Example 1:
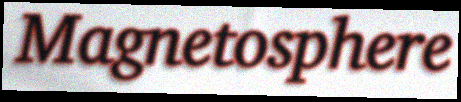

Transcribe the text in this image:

Magnetosphere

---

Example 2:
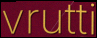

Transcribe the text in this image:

vrutti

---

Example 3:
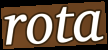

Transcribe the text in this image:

rota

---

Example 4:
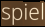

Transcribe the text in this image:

spiel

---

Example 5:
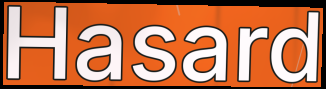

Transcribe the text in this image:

Hasard